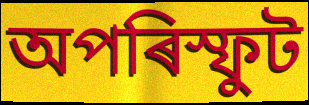
অপৰিস্ফুট